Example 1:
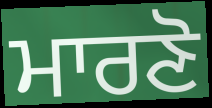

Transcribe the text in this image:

ਮਾਰਣੋ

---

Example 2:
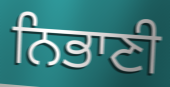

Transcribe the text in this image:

ਨਿਭਾਣੀ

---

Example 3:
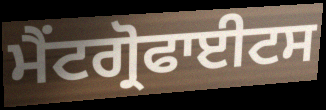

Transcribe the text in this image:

ਮੈਂਟਗ੍ਰੋਫਾਈਟਸ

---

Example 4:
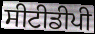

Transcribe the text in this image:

ਸੀਟੀਡੀਪੀ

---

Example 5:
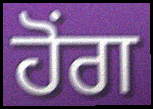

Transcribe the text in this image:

ਹੋੰਗ